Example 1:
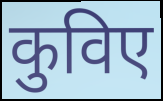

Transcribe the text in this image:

कुविए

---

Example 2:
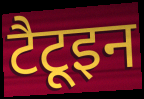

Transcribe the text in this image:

टैटूइन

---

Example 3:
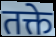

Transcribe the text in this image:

तक्ते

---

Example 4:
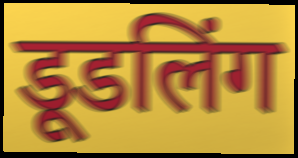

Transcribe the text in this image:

डूडलिंग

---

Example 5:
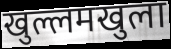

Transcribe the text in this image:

खुल्लमखुला